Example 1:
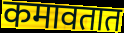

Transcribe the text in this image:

कमावतात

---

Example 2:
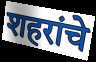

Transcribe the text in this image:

शहरांचे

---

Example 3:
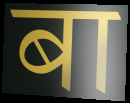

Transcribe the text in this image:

बा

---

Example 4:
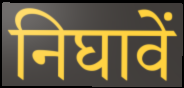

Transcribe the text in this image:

निघावें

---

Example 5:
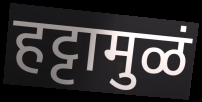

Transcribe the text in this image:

हट्टामुळं